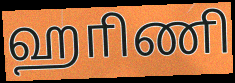
ஹரிணி